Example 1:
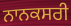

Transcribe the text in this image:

ਨਾਨਕਸਰੀ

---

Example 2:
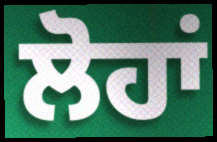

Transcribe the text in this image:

ਲੋਹਾਂ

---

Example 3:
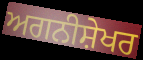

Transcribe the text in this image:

ਅਗਨੀਸ਼ੇਖਰ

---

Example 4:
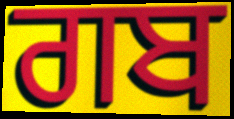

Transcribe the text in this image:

ਗਬ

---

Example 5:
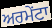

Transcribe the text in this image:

ਅਰਮੇਂਟਾ